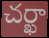
చర్ఖా